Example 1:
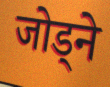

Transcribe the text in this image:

जोड्ने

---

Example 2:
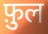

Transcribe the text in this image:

फ़ुल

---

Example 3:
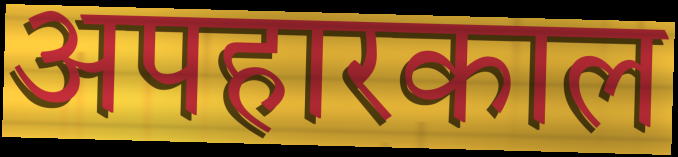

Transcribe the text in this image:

अपहारकाल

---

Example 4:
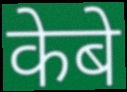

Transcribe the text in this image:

केबे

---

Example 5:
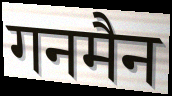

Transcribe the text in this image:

गनमैन